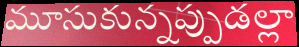
మూసుకున్నప్పుడల్లా